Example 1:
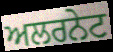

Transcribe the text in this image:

ਅਲਰਨੇਟ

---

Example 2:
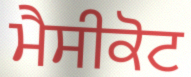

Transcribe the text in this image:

ਮੈਸੀਕੋਟ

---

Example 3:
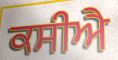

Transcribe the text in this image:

ਕਸੀਐ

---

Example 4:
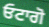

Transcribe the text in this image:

ਓਟਾਗੋ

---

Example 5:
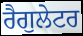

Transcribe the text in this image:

ਰੈਗੁਲੇਟਰ